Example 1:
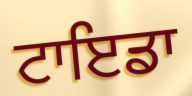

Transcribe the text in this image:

ਟਾਇਡਾ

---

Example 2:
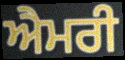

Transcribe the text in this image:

ਐਮਰੀ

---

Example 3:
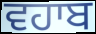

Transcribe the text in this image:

ਵਹਾਬ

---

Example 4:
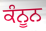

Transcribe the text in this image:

ਕੰਨੂਨ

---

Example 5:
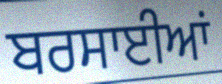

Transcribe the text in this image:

ਬਰਸਾਈਆਂ